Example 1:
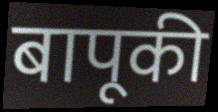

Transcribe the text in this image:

बापूकी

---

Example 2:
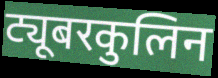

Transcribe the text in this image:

ट्यूबरकुलिन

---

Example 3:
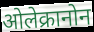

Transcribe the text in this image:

ओलेक्रानोन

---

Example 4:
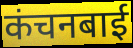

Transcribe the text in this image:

कंचनबाई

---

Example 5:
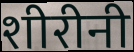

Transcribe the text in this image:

शीरीनी